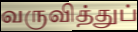
வருவித்துப்